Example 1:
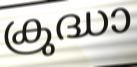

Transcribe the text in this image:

ക്രുദ്ധാ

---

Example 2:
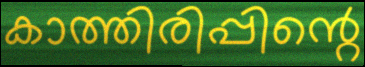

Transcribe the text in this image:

കാത്തിരിപ്പിന്റെ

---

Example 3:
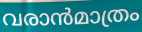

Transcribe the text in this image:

വരാൻമാത്രം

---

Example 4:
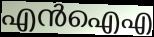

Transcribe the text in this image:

എൻഐഎ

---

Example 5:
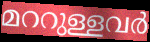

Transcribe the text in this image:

മററുള്ളവർ